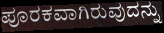
ಪೂರಕವಾಗಿರುವುದನ್ನು